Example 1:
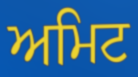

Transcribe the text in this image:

ਅਮਿਟ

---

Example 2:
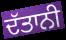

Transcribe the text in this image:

ਦੱਤਾਨੀ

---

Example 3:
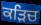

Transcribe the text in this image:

ਕੜਿਚ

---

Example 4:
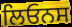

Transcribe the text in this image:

ਲਿਓਨਸ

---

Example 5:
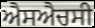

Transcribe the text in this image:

ਐਸਐਚਸੀ